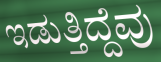
ಇಡುತ್ತಿದ್ದೆವು